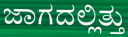
ಜಾಗದಲ್ಲಿತ್ತು